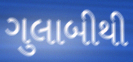
ગુલાબીથી